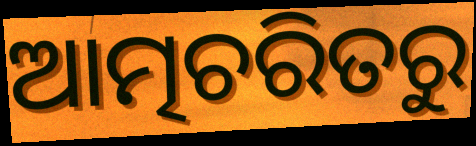
ଆତ୍ମଚରିତରୁ